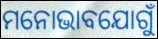
ମନୋଭାବଯୋଗୁଁ